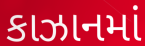
કાઝાનમાં